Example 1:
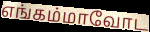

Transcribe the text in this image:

எங்கம்மாவோட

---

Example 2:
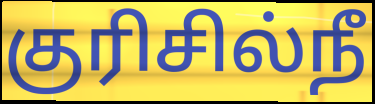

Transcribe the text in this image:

குரிசில்நீ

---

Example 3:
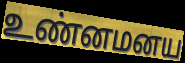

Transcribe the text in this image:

உண்னமனய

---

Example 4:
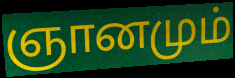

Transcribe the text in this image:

ஞானமும்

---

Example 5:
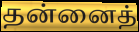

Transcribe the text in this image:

தன்னைத்